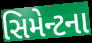
સિમેન્ટના